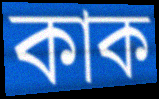
কাক